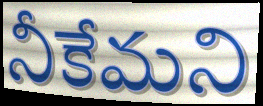
నీకేమని